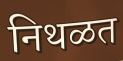
निथळत